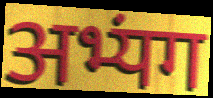
अभ्यंग